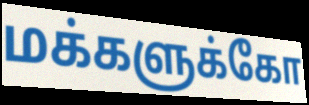
மக்களுக்கோ